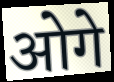
ओगे